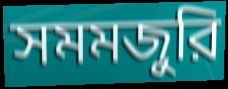
সমমজুরি